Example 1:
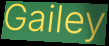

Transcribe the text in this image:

Gailey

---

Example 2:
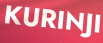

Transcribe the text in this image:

KURINJI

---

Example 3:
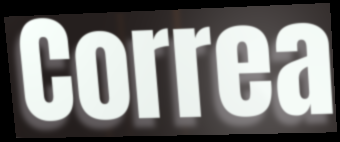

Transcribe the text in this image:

Correa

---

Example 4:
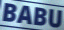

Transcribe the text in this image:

BABU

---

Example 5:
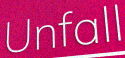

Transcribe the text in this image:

Unfall